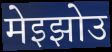
मेइझोउ